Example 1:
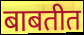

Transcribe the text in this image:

बाबतीत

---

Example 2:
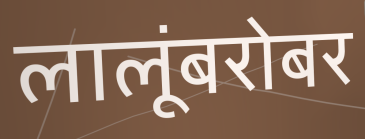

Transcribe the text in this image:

लालूंबरोबर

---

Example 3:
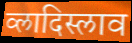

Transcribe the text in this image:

व्लादिस्लाव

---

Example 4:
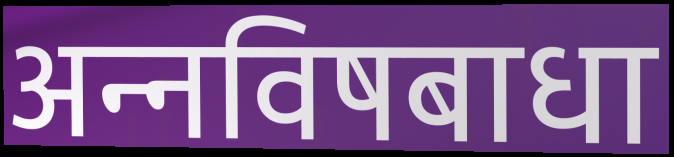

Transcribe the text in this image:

अन्नविषबाधा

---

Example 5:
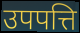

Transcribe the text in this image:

उपपत्ति